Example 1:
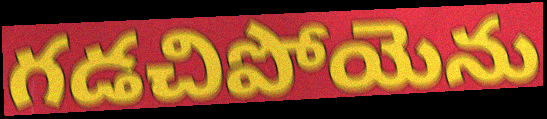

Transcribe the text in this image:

గడచిపోయెను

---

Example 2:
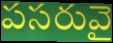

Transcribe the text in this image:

పసరువై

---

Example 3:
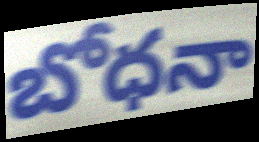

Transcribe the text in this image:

బోధనా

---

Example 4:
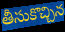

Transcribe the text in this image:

తీసుకొచ్చిన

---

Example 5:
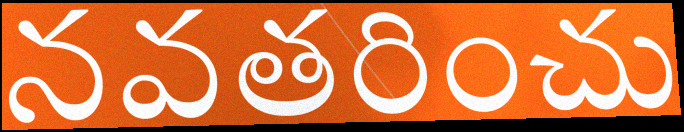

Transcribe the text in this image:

నవతరించు